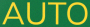
AUTO